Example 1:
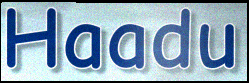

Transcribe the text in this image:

Haadu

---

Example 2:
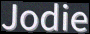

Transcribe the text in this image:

Jodie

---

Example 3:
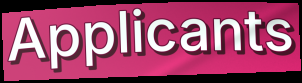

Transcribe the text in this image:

Applicants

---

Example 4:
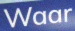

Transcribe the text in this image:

Waar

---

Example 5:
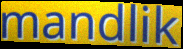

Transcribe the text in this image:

mandlik